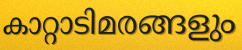
കാറ്റാടിമരങ്ങളും